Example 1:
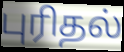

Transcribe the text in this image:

புரிதல்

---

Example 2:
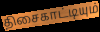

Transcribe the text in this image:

திசைகாட்டியும்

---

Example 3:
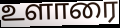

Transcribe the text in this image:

உளாரை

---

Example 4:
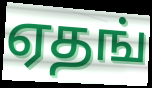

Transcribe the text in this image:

ஏதங்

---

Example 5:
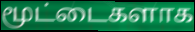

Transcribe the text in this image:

மூட்டைகளாக